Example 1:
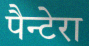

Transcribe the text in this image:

पैन्टेरा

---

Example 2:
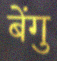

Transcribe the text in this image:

बेंगु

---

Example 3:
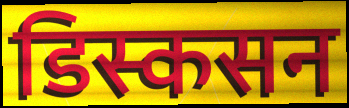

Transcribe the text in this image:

डिस्कसन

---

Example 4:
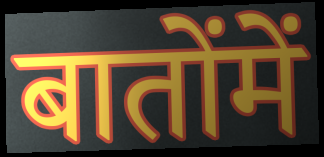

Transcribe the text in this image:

बातोंमें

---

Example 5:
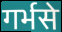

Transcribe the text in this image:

गर्भसे